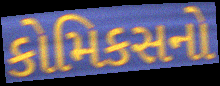
કોમિકસનો